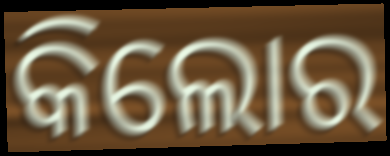
କିଲୋର